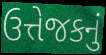
ઉત્તેજકનું